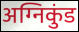
अग्निकुंड